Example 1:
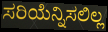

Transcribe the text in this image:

ಸರಿಯೆನ್ನಿಸಲಿಲ್ಲ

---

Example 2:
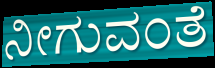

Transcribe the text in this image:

ನೀಗುವಂತೆ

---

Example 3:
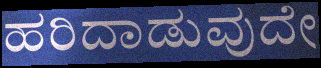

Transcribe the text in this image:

ಹರಿದಾಡುವುದೇ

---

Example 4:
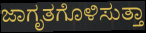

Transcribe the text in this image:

ಜಾಗೃತಗೊಳಿಸುತ್ತಾ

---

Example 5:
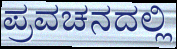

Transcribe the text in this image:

ಪ್ರವಚನದಲ್ಲಿ